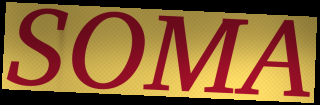
SOMA